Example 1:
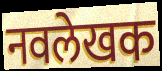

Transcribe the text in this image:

नवलेखक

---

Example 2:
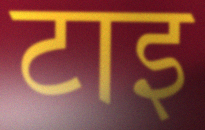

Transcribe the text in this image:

टाइ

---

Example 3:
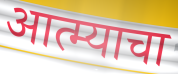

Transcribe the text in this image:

आत्म्याचा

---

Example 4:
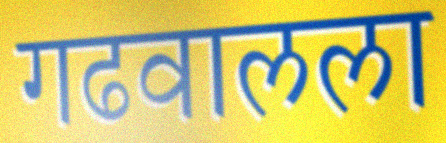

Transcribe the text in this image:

गढवालला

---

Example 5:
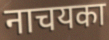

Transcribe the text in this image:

नाचयका